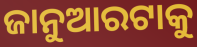
ଜାନୁଆରଟାକୁ